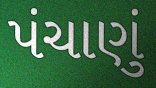
પંચાણું